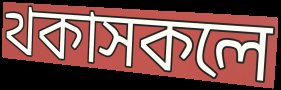
থকাসকলে